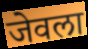
जेवला